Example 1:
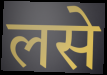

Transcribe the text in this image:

लसे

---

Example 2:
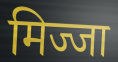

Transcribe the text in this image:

मिज्जा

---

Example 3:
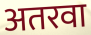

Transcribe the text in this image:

अतरवा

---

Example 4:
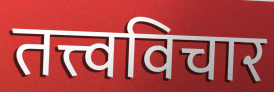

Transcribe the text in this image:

तत्त्वविचार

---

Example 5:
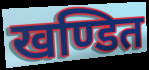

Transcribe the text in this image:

खण्डित